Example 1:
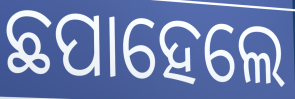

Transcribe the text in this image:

ଛପାହେଲେ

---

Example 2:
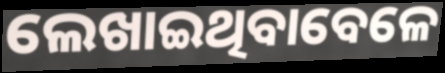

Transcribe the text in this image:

ଲେଖାଇଥିବାବେଳେ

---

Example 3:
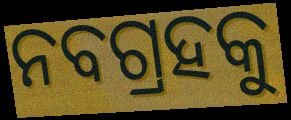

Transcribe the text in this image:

ନବଗ୍ରହକୁ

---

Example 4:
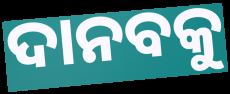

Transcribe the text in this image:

ଦାନବକୁ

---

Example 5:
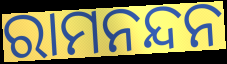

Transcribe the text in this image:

ରାମନନ୍ଦନ